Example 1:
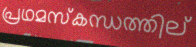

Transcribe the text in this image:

പ്രഥമസ്കന്ധത്തില്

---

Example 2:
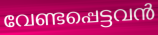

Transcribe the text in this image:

വേണ്ടപ്പെട്ടവൻ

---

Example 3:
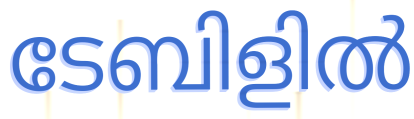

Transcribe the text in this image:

ടേബിളിൽ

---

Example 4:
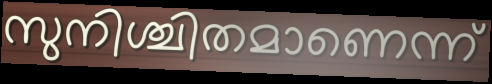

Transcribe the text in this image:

സുനിശ്ചിതമാണെന്ന്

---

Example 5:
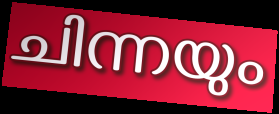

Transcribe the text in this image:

ചിന്നയും